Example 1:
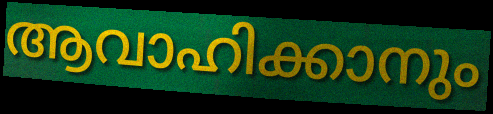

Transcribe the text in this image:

ആവാഹിക്കാനും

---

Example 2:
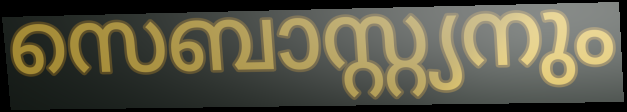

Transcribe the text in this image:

സെബാസ്റ്റ്യനും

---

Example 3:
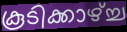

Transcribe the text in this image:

കൂടിക്കാഴ്ച്ച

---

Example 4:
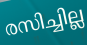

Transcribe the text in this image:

രസിച്ചില്ല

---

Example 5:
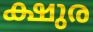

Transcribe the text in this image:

ക്ഷുര